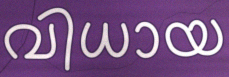
വിധായ